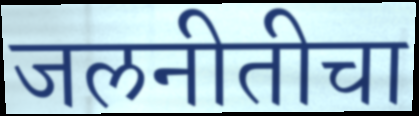
जलनीतीचा